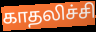
காதலிச்சி